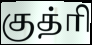
குத்ரி